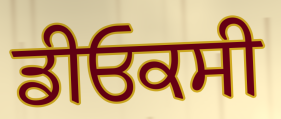
ਡੀਓਕਸੀ